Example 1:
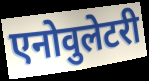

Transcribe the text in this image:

एनोवुलेटरी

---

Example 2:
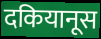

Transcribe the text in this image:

दकियानूस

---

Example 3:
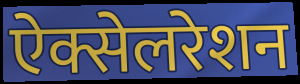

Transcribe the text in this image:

ऐक्सेलरेशन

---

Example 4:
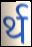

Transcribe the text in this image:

र्थ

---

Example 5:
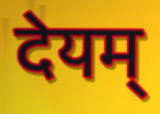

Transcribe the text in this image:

देयम्